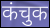
कंचुक